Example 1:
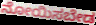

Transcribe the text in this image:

ನೋಯಿಸಬೇಡ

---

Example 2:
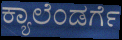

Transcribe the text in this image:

ಕ್ಯಾಲೆಂಡರ್ಗೆ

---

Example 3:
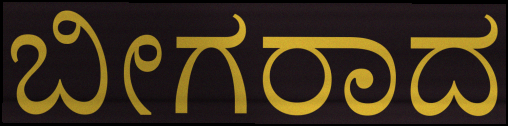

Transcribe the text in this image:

ಬೀಗರಾದ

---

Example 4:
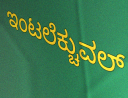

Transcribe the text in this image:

ಇಂಟಲೆಕ್ಚುವಲ್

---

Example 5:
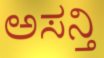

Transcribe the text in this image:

ಅಸನ್ತಿ